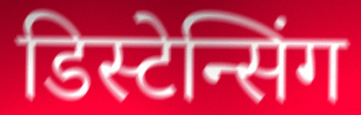
डिस्टेन्सिंग